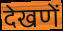
देखणें